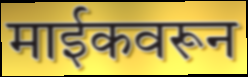
माईकवरून